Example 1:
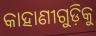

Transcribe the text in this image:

କାହାଣୀଗୁଡ଼ିକୁ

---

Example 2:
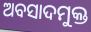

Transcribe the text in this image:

ଅବସାଦମୁକ୍ତ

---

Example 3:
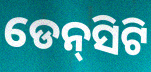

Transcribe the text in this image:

ଡେନ୍‌ସିଟି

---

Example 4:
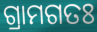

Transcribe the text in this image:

ଗ୍ରାମଗତଃ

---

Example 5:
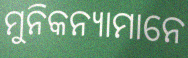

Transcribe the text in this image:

ମୁନିକନ୍ୟାମାନେ